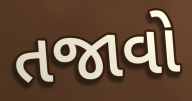
તજાવો